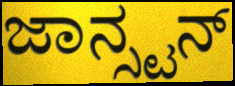
ಜಾನ್ಸ್ಟನ್